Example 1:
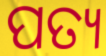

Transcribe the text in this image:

ପତ୍ୟ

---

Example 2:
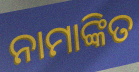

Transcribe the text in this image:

ନାମାଙ୍କିତ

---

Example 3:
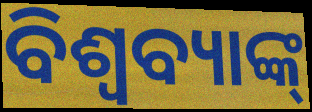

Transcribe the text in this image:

ବିଶ୍ବବ୍ୟାଙ୍କ୍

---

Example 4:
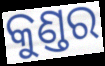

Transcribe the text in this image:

କୁଣ୍ଡର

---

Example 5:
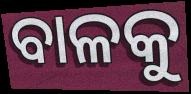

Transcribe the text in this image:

ବାଳକୁ